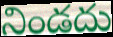
నిండదు